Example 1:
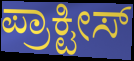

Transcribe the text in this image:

ಪ್ರಾಕ್ಟೀಸ್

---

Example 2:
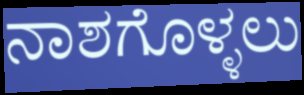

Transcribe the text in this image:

ನಾಶಗೊಳ್ಳಲು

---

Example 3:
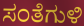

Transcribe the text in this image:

ಸಂತೆಗುಳಿ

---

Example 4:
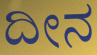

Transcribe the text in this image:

ದೀನ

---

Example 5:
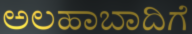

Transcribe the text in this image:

ಅಲಹಾಬಾದಿಗೆ